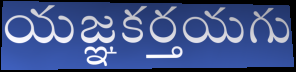
యజ్ఞకర్తయగు